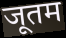
जूतम